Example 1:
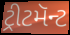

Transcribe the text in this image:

ટ્રીટમૅન્ટ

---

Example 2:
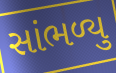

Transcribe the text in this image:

સાંભળ્યુ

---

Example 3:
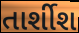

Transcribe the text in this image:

તાર્શીશ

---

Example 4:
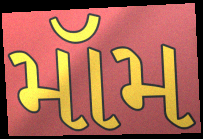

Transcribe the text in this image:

મૉમ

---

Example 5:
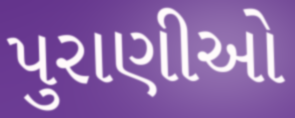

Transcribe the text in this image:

પુરાણીઓ